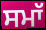
ਸਮਾੱ